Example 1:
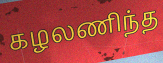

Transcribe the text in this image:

கழலணிந்த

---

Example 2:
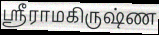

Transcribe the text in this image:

ஸ்ரீராமகிருஷ்ண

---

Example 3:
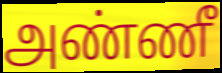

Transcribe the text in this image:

அண்ணீ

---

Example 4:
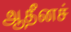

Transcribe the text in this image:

ஆதீனச்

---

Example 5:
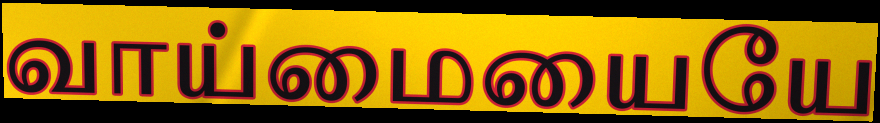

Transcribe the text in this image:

வாய்மையையே